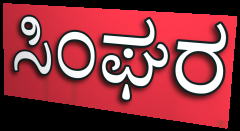
ಸಿಂಘರ